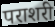
पराशरी